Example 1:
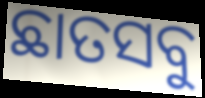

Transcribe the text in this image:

ଛାତସବୁ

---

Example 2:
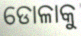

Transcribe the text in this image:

ଡୋଳାକୁ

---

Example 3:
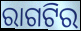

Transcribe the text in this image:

ରାଗଟିର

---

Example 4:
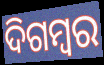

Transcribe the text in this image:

ଦିଗମ୍ବର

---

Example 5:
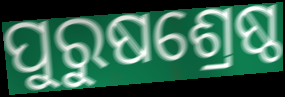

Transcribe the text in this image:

ପୁରୁଷଶ୍ରେଷ୍ଠ